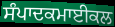
ਸੰਪਾਦਕਮਾਈਕਲ